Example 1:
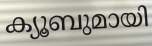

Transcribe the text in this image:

ക്യൂബുമായി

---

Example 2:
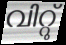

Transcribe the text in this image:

വിറ്റു്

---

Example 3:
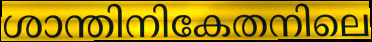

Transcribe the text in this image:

ശാന്തിനികേതനിലെ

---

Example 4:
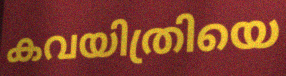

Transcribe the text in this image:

കവയിത്രിയെ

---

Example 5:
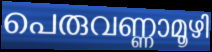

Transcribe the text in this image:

പെരുവണ്ണാമൂഴി